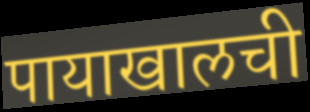
पायाखालची